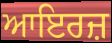
ਆਇਰਜ਼